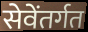
सेवेंतर्गत